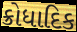
ક્રોધાદિક